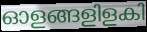
ഓളങ്ങളിളകി